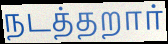
நடத்தறார்